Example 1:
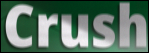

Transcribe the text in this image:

Crush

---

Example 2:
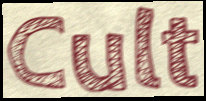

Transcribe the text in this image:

Cult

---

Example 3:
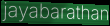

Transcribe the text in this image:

jayabarathan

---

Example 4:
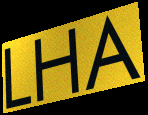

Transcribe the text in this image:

LHA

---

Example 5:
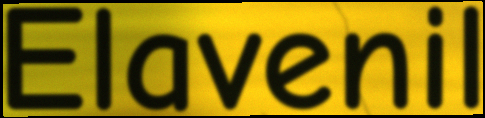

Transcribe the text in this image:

Elavenil